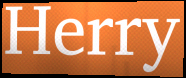
Herry